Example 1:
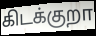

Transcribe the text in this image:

கிடக்குறா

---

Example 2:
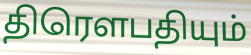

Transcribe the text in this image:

திரெளபதியும்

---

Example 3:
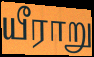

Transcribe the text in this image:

யீராறு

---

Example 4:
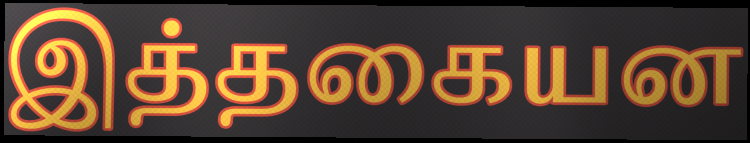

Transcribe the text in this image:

இத்தகையன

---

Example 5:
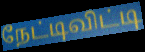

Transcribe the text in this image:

நேட்டிவிட்டி